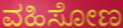
ವಹಿಸೋಣ